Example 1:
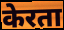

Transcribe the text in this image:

केरता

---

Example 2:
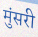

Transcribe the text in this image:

मुंसरी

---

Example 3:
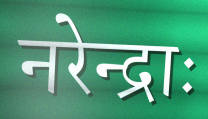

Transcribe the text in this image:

नरेन्द्राः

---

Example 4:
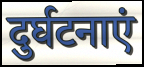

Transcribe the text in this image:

दुर्घटनाएं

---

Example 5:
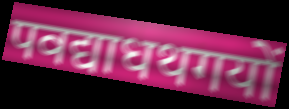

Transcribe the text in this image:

पवद्याधथगयों